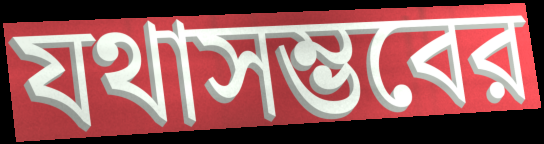
যথাসম্ভবের